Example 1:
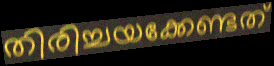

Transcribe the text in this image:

തിരിച്ചയക്കേണ്ടത്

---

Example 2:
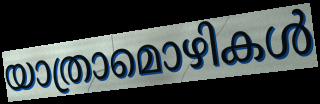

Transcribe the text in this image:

യാത്രാമൊഴികൾ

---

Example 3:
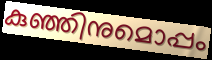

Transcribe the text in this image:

കുഞ്ഞിനുമൊപ്പം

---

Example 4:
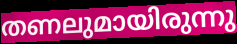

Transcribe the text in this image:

തണലുമായിരുന്നു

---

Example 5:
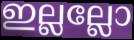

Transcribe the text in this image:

ഇല്ലല്ലോ